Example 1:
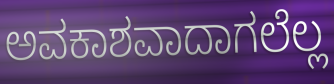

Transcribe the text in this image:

ಅವಕಾಶವಾದಾಗಲೆಲ್ಲ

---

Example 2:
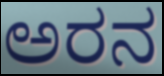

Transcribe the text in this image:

ಅರನ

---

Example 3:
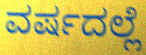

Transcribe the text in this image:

ವರ್ಷದಲ್ಲೆ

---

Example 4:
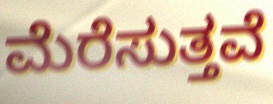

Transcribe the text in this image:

ಮೆರೆಸುತ್ತವೆ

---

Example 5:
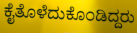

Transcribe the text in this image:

ಕೈತೊಳೆದುಕೊಂಡಿದ್ದರು